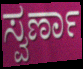
ಸ್ವರ್ಣಾ